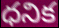
ధనిక